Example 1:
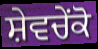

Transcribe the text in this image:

ਸ਼ੇਵਚੇਂਕੋ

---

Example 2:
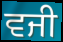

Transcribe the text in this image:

ਵਜੀ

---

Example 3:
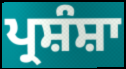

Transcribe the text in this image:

ਪ੍ਰਸ਼ੰਸ਼ਾ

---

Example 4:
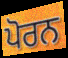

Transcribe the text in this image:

ਪੋਰਨ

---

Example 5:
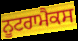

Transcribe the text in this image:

ਨੂਟਰਾਮੈਕਸ